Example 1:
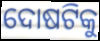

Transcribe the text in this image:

ଦୋଷଟିକୁ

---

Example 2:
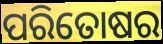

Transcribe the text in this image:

ପରିତୋଷର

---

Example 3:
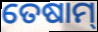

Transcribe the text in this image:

ତେଷାମ୍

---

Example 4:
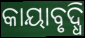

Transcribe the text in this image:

କାୟାବୃଦ୍ଧି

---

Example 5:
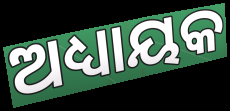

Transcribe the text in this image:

ଅଧ୍ୟାୟକ